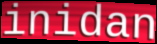
inidan